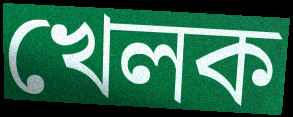
খেলক